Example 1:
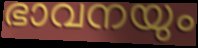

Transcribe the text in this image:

ഭാവനയും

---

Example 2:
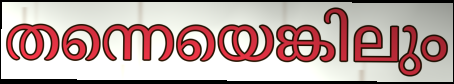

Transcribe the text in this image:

തന്നെയെങ്കിലും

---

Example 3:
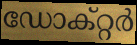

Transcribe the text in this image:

ഡോക്റ്റർ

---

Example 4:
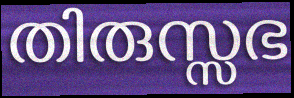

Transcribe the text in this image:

തിരുസ്സഭ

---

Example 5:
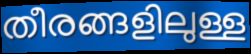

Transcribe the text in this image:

തീരങ്ങളിലുള്ള